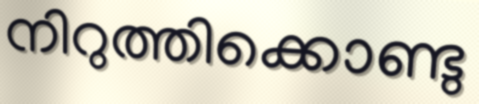
നിറുത്തിക്കൊണ്ടു